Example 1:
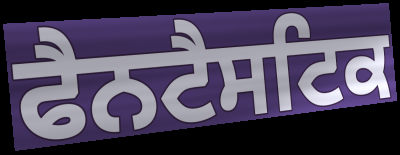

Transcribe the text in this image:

ਫੈਨਟੈਸਟਿਕ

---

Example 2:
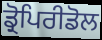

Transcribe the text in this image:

ਡ੍ਰੋਪਿਰੀਡੋਲ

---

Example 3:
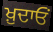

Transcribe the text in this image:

ਖ਼ੁਦਾਓਂ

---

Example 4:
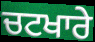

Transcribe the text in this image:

ਚਟਖਾਰੇ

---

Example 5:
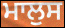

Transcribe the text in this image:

ਮਾਲੁਸ